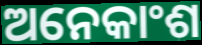
ଅନେକାଂଶ